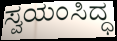
ಸ್ವಯಂಸಿದ್ಧ